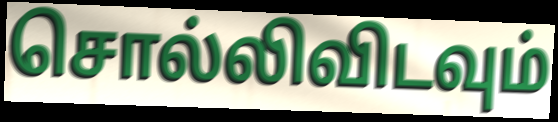
சொல்லிவிடவும்